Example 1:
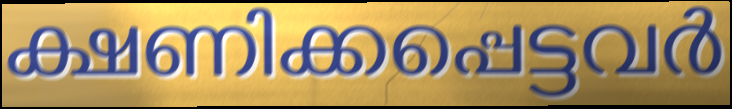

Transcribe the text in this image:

ക്ഷണിക്കപ്പെട്ടവർ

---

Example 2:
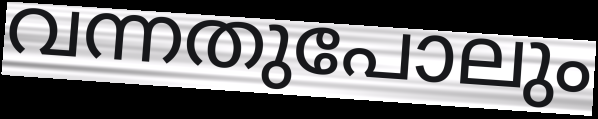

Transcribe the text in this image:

വന്നതുപോലും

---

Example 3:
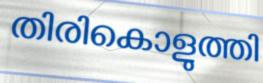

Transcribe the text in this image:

തിരികൊളുത്തി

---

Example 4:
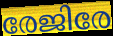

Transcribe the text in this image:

രേജിരേ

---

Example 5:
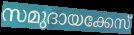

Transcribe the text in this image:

സമുദായക്കേസ്